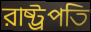
রাষ্ট্রপতি